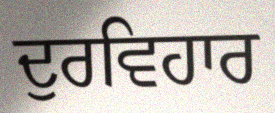
ਦੁਰਵਿਹਾਰ